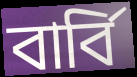
বার্বি